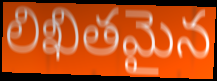
లిఖితమైన